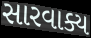
સારવાક્ય